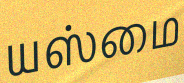
யஸ்மை